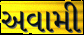
અવામી